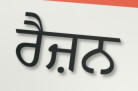
ਰੈਜ਼ਨ